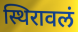
स्थिरावलं